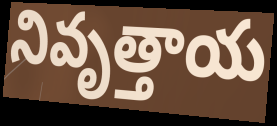
నివృత్తాయ